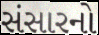
સંસારનો